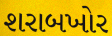
શરાબખોર